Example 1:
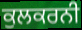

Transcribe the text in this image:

ਕੁਲਕਰਨੀ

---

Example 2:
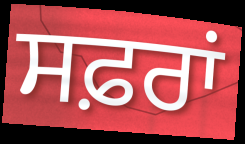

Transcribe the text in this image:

ਸਫ਼ਰਾਂ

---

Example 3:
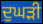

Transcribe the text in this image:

ਦੁਘੜੀ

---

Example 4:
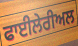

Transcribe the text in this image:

ਫਾਈਲੇਰੀਅਲ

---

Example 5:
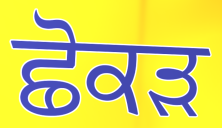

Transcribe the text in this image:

ਛੋਕੜ